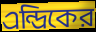
এন্দ্রিকের